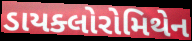
ડાયક્લોરોમિથેન